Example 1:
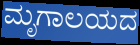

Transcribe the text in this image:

ಮೃಗಾಲಯದ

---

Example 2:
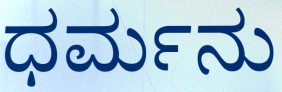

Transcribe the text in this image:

ಧರ್ಮನು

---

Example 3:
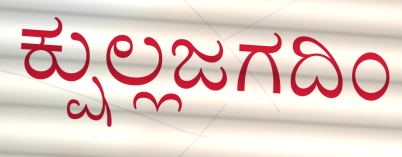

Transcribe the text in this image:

ಕ್ಷುಲ್ಲಜಗದಿಂ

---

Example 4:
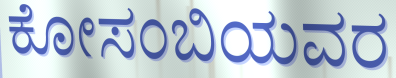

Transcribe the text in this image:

ಕೋಸಂಬಿಯವರ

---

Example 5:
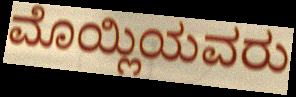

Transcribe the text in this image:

ಮೊಯ್ಲಿಯವರು